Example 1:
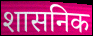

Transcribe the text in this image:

शासनिक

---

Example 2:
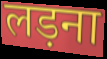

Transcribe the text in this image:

लड़ना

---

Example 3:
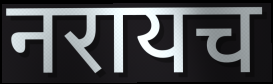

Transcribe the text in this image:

नरायच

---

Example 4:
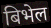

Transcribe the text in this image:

बिभेल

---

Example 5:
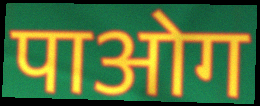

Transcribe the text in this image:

पाओग